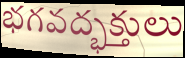
భగవద్భక్తులు